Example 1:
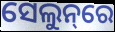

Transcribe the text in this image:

ସେଲୁନ୍‌ରେ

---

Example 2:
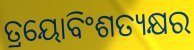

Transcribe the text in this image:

ତ୍ରୟୋବିଂଶତ୍ୟକ୍ଷର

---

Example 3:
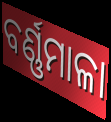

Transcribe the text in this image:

ବର୍ଣ୍ଣମାଳା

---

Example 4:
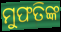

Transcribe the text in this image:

ମୁଫତିଙ୍କ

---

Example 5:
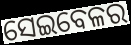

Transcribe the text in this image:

ସେଇବେଳର